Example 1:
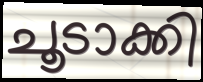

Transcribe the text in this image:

ചൂടാക്കി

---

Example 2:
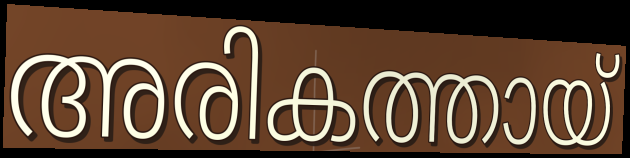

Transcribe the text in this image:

അരികത്തായ്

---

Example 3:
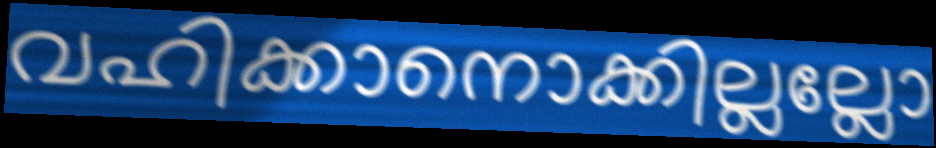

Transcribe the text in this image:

വഹിക്കാനൊക്കില്ലല്ലോ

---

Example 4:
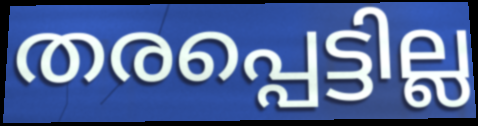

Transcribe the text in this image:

തരപ്പെട്ടില്ല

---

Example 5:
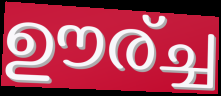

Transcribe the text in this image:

ഊര്ച്ച